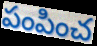
పంపించ